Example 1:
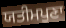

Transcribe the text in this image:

ਯਤੀਮਪੁਣਾ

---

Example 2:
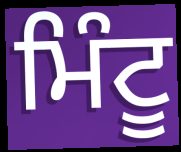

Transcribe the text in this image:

ਮਿੰਟੂ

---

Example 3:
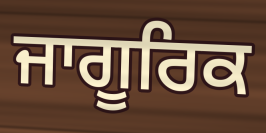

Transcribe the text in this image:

ਜਾਗੂਰਿਕ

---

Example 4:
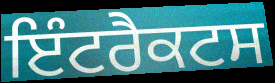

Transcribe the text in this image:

ਇੰਟਰੈਕਟਸ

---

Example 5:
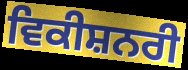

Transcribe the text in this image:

ਵਿਕੀਸ਼ਨਰੀ